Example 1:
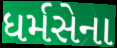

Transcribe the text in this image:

ધર્મસેના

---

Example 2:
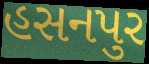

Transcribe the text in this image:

હસનપુર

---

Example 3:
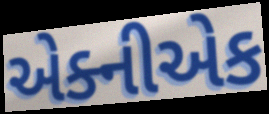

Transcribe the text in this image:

એક્નીએક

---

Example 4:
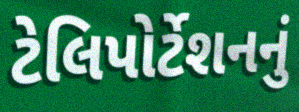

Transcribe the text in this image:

ટેલિપોર્ટેશનનું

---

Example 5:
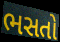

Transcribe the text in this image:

ભસતો